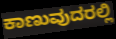
ಕಾಣುವುದರಲ್ಲಿ